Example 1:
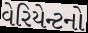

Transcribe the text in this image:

વેરિયેન્ટનો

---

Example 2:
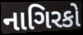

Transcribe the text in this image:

નાગિરકો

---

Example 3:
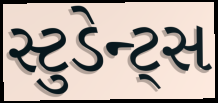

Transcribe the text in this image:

સ્ટુડેન્ટ્સ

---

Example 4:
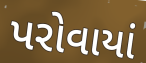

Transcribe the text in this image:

પરોવાયાં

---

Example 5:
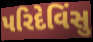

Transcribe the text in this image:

પરિદેવિંસુ